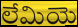
లేమియె